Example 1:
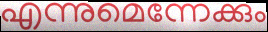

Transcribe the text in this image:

എന്നുമെന്നേക്കും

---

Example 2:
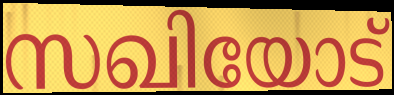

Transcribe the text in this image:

സഖിയോട്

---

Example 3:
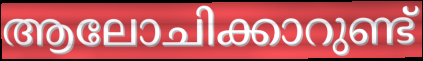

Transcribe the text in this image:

ആലോചിക്കാറുണ്ട്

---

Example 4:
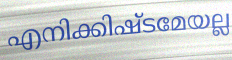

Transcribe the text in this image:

എനിക്കിഷ്ടമേയല്ല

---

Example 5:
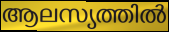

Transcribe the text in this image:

ആലസ്യത്തിൽ